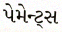
પેમેન્ટ્સ